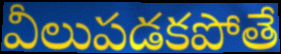
వీలుపడకపోతే